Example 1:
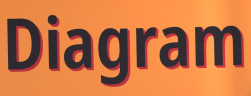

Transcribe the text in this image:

Diagram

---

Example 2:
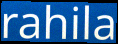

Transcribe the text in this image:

rahila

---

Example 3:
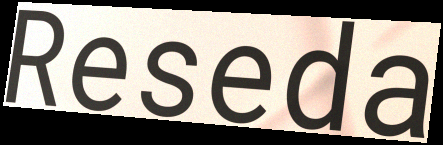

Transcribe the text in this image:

Reseda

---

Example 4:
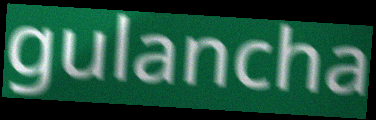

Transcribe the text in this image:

gulancha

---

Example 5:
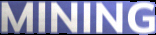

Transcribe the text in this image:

MINING